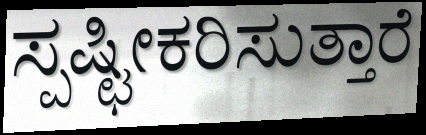
ಸ್ಪಷ್ಟೀಕರಿಸುತ್ತಾರೆ